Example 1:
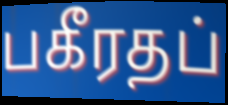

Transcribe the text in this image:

பகீரதப்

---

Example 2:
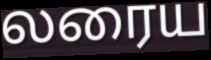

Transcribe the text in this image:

லரைய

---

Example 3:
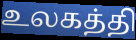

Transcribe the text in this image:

உலகத்தி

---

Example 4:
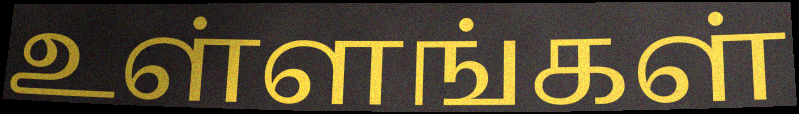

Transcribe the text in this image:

உள்ளங்கள்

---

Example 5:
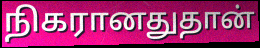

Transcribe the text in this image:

நிகரானதுதான்